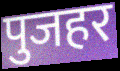
पुजहर